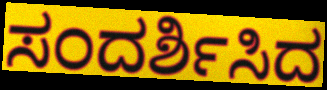
ಸಂದರ್ಶಿಸಿದ